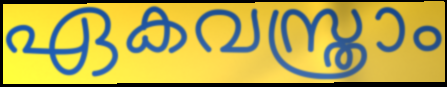
ഏകവസ്ത്രാം